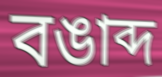
বঙাব্দ